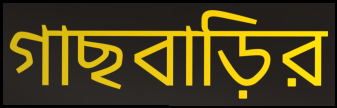
গাছবাড়ির